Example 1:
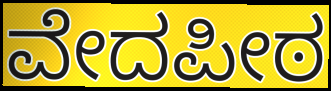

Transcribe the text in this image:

ವೇದಪೀಠ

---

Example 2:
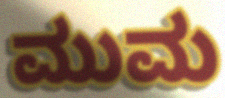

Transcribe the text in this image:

ಮುಮ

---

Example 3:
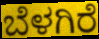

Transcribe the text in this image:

ಬೆಳಗಿರೆ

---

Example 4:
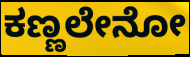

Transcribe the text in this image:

ಕಣ್ಣಲೇನೋ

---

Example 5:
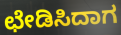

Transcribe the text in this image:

ಛೇಡಿಸಿದಾಗ